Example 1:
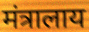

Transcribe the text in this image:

मंत्रालाय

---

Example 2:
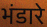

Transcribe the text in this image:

भंडारे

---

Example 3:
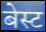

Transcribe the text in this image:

बेस्ट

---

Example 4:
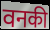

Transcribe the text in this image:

वनकी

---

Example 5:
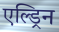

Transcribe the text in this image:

एल्ड्रिन